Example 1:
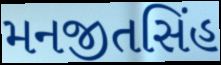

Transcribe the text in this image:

મનજીતસિંહ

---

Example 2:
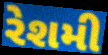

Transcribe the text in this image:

રેશમી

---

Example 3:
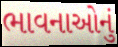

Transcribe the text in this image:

ભાવનાઓનું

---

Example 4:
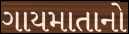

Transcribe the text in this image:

ગાયમાતાનો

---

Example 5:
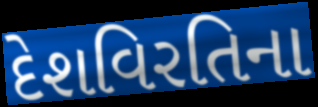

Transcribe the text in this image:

દેશવિરતિના